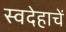
स्वदेहाचें